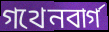
গথেনবার্গ